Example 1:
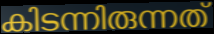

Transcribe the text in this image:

കിടന്നിരുന്നത്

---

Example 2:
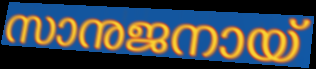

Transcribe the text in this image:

സാനുജനായ്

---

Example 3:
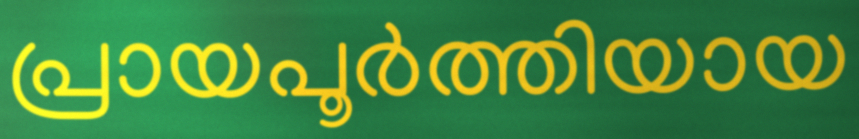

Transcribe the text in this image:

പ്രായപൂർത്തിയായ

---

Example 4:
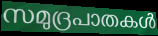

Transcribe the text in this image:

സമുദ്രപാതകൾ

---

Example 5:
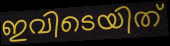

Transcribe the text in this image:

ഇവിടെയിത്